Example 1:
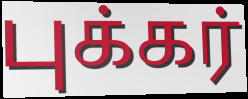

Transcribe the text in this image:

புக்கர்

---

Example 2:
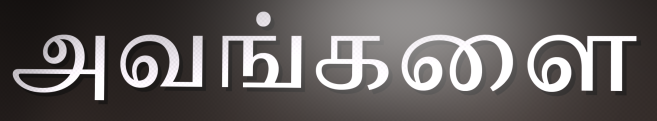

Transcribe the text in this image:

அவங்களை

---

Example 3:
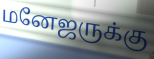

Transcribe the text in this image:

மனேஜருக்கு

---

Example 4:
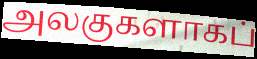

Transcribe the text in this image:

அலகுகளாகப்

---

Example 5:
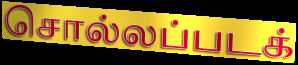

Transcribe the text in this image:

சொல்லப்படக்